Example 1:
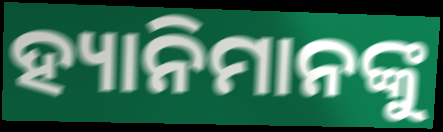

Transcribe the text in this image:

ହ୍ୟାନିମାନଙ୍କୁ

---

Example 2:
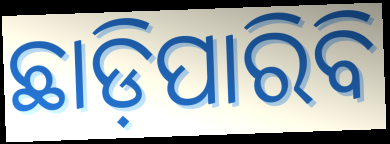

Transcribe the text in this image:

ଛାଡ଼ିପାରିବି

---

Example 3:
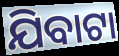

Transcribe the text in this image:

ଯିବାଟା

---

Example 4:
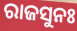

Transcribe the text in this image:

ରାଜସୁନଃ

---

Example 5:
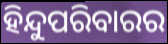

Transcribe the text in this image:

ହିନ୍ଦୁପରିବାରର